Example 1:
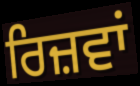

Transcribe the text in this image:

ਰਿਜ਼ਵਾਂ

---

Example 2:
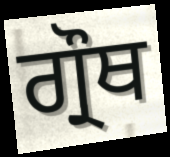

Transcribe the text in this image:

ਗ੍ਰੌਥ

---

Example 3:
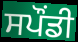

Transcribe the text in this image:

ਸਪੌਂਡੀ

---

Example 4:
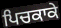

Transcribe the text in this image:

ਪਿਚਕਾਕੇ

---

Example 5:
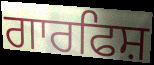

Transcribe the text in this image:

ਗਾਰਫਿਸ਼